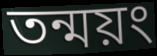
তন্ময়ং